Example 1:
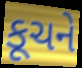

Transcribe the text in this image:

કૂચને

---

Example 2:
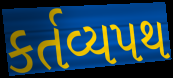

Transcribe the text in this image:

કર્તવ્યપથ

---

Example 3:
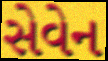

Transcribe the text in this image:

સેવેન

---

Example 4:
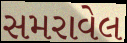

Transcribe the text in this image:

સમરાવેલ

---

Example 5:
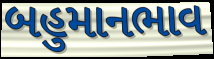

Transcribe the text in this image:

બહુમાનભાવ